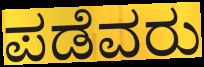
ಪಡೆವರು